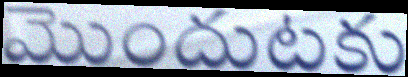
మొందుటకు